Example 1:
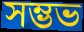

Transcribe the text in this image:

সম্ভভ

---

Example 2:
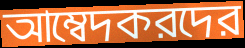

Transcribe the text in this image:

আম্বেদকরদের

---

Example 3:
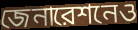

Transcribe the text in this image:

জেনারেশনেও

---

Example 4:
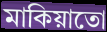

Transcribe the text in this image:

মাকিয়াতো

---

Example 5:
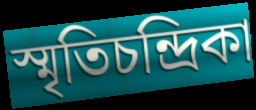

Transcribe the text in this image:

স্মৃতিচন্দ্রিকা